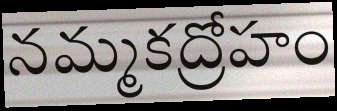
నమ్మకద్రోహం